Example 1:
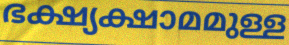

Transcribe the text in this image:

ഭക്ഷ്യക്ഷാമമുള്ള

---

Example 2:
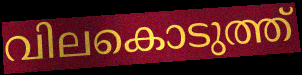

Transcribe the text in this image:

വിലകൊടുത്ത്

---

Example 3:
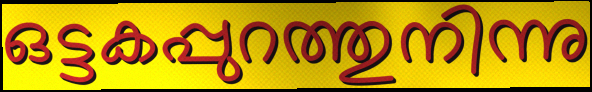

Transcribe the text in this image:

ഒട്ടകപ്പുറത്തുനിന്നു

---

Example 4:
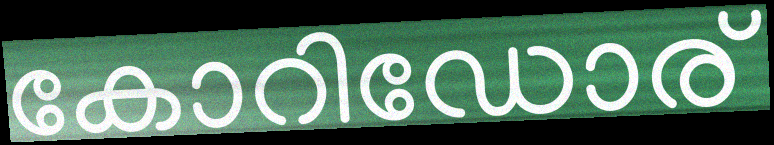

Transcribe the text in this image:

കോറിഡോര്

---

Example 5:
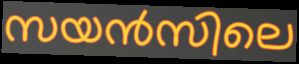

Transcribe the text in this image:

സയൻസിലെ